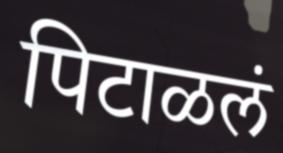
पिटाळलं